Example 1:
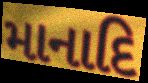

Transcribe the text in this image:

માનાદિ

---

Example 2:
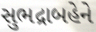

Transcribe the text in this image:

સુભદ્રાબહેને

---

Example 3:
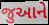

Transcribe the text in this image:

જુઆને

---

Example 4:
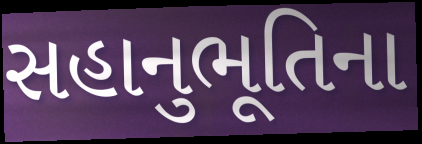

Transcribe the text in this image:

સહાનુભૂતિના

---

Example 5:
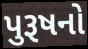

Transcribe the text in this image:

પુરૂષનો